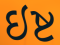
ઇષ્ટ